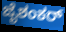
ಜೈಶಂಕರ್